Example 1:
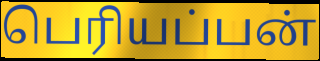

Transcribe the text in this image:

பெரியப்பன்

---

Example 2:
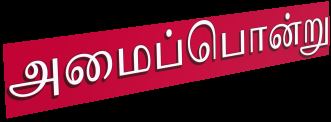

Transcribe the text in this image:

அமைப்பொன்று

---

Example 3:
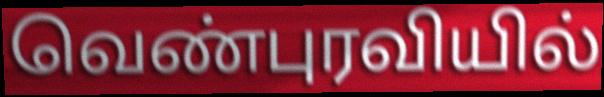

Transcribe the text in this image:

வெண்புரவியில்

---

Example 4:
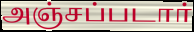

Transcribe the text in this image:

அஞ்சப்படார்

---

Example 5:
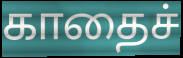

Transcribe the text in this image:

காதைச்